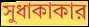
সুধাকাকার